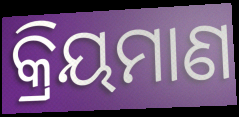
କ୍ରିୟମାଣ